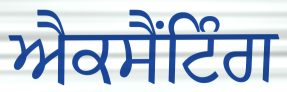
ਐਕਸੈਂਟਿੰਗ